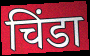
चिंडा